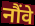
नौंवे